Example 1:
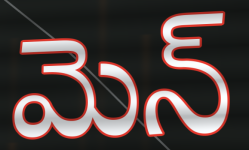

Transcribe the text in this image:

మెన్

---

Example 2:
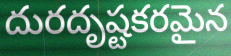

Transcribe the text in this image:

దురదృష్టకరమైన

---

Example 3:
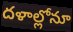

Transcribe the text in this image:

దళాల్లోనూ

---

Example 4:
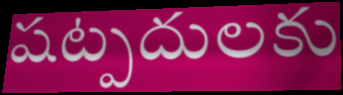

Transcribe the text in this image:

షట్పదులకు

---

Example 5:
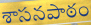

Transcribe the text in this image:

శాసనపాఠం